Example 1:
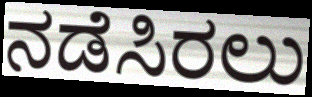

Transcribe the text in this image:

ನಡೆಸಿರಲು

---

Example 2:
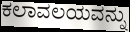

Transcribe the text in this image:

ಕಲಾವಲಯವನ್ನು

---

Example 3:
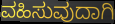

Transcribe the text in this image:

ವಹಿಸುವುದಾಗಿ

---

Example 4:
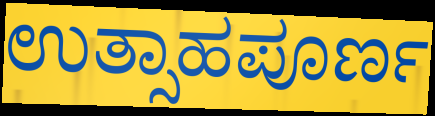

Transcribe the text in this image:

ಉತ್ಸಾಹಪೂರ್ಣ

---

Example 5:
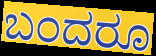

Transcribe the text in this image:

ಬಂದರೂ